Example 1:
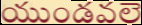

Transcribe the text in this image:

యుండవలె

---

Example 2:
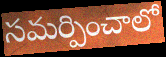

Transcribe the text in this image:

సమర్పించాలో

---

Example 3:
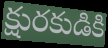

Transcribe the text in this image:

క్షురకుడికి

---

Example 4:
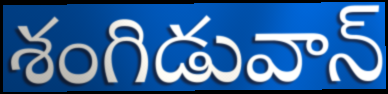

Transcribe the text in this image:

శంగిడువాన్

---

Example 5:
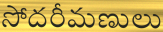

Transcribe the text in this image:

సోదరీమణులు